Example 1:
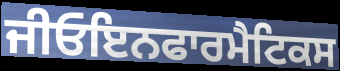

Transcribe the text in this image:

ਜੀਓਇਨਫਾਰਮੈਟਿਕਸ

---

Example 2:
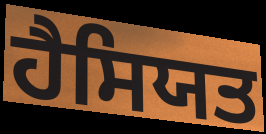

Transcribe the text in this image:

ਹੈਸਿਯਤ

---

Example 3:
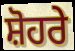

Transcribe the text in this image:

ਸ਼ੋਹਰੇ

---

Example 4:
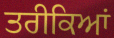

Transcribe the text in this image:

ਤਰੀਕਿਆਂ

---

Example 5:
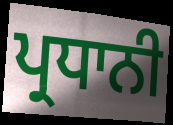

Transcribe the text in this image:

ਪ੍ਰਧਾਨੀ